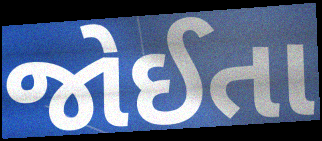
જોઈતા